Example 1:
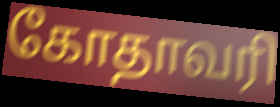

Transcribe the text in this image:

கோதாவரி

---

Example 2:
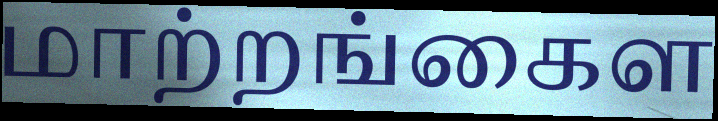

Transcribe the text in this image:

மாற்றங்கைள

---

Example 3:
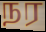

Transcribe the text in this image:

நர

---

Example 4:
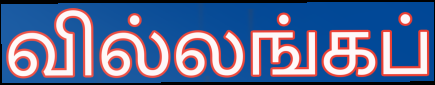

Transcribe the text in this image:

வில்லங்கப்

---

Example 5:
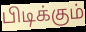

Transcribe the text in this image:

பிடிக்கும்